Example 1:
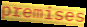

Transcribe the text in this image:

premises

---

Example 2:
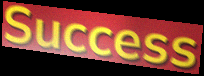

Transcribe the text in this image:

Success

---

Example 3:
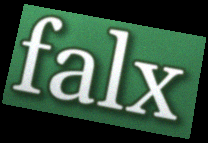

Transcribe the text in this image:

falx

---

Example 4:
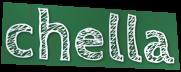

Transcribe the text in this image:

chella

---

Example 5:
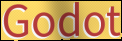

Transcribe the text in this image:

Godot